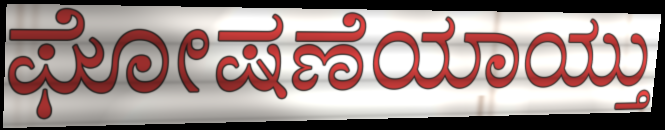
ಘೋಷಣೆಯಾಯ್ತು